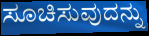
ಸೂಚಿಸುವುದನ್ನು